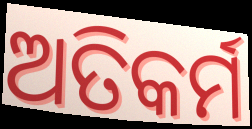
ଅତିକର୍ମ